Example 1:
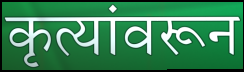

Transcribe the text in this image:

कृत्यांवरून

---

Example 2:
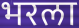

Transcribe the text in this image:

भरला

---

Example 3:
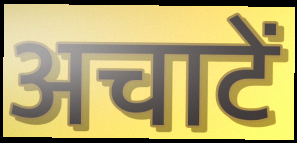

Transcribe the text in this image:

अचाटें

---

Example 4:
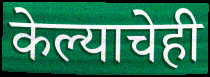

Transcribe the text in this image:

केल्याचेही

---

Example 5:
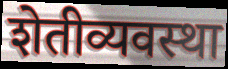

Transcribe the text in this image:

शेतीव्यवस्था